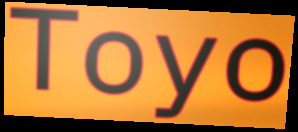
Toyo